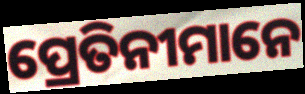
ପ୍ରେତିନୀମାନେ